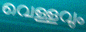
വെള്ളവും